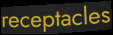
receptacles